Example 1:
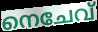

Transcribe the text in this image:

നെചേവ്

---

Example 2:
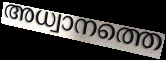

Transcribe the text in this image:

അധ്വാനത്തെ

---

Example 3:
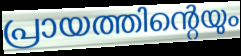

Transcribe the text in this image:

പ്രായത്തിന്റെയും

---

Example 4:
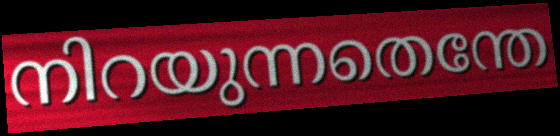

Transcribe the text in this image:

നിറയുന്നതെന്തേ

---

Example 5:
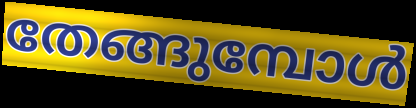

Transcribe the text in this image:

തേങ്ങുമ്പോൾ